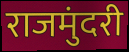
राजमुंदरी